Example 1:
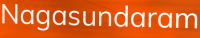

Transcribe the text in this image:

Nagasundaram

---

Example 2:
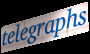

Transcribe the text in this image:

telegraphs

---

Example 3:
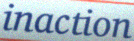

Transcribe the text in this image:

inaction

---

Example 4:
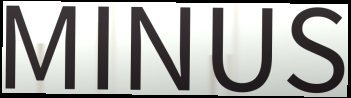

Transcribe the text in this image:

MINUS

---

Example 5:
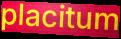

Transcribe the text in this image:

placitum